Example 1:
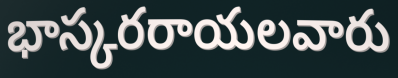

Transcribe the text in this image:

భాస్కరరాయలవారు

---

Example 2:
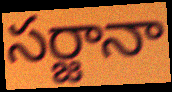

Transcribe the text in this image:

సర్జానా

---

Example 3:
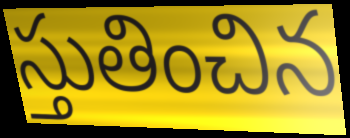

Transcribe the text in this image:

స్తుతించిన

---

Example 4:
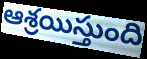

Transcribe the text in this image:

ఆశ్రయిస్తుంది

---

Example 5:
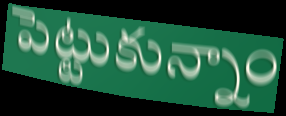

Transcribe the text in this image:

పెట్టుకున్నాం